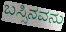
ಬಸ್ಸಿನವನು